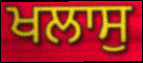
ਖਲਾਸੁ